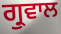
ਗ੍ਰੁਵਾਲ